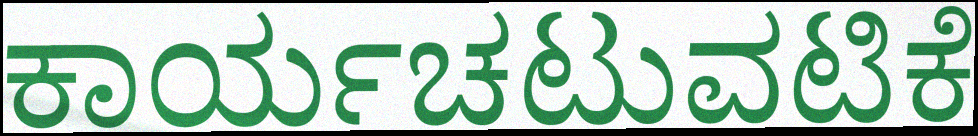
ಕಾರ್ಯಚಟುವಟಿಕೆ